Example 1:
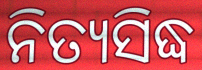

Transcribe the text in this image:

ନିତ୍ୟସିଦ୍ଧ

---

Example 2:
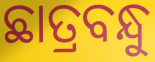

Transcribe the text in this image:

ଛାତ୍ରବନ୍ଧୁ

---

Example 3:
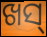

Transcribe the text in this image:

ଖସ୍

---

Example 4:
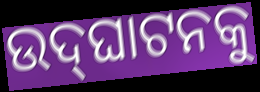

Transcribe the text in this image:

ଉଦ୍‌ଘାଟନକୁ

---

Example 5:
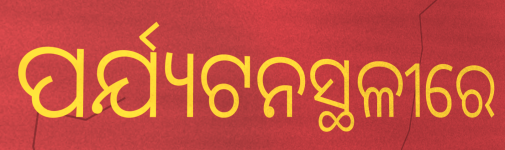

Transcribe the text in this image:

ପର୍ଯ୍ୟଟନସ୍ଥଳୀରେ